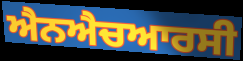
ਐਨਐਚਆਰਸੀ